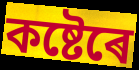
কষ্টেৰে